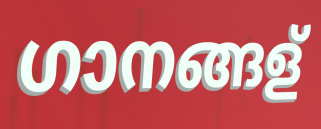
ഗാനങ്ങള്